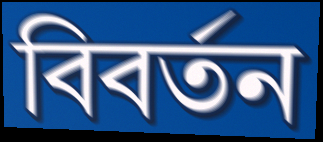
বিবর্তন